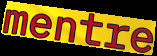
mentre